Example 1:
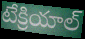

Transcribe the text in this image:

టేక్రియాల్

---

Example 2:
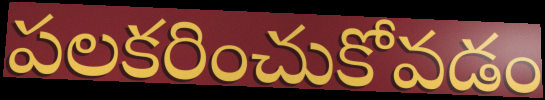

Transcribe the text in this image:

పలకరించుకోవడం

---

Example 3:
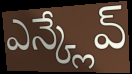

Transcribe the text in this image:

ఎన్క్లేవ్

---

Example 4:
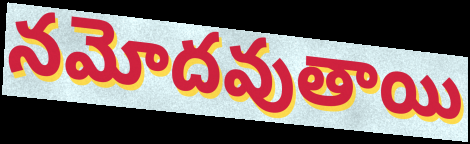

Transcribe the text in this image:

నమోదవుతాయి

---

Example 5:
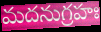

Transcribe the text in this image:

మదనుగ్రహః